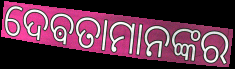
ଦେଵତାମାନଙ୍କର